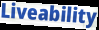
Liveability